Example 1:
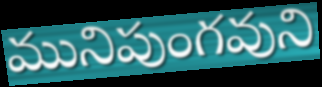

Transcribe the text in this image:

మునిపుంగవుని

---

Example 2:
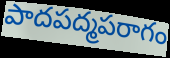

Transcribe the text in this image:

పాదపద్మపరాగం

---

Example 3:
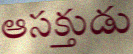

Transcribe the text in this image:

ఆసక్తుడు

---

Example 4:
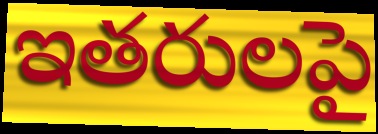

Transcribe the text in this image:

ఇతరులపై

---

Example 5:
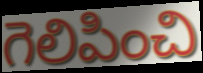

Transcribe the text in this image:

గెలిపించి